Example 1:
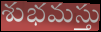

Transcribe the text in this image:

శుభమస్తు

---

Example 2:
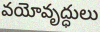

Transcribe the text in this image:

వయోవృద్ధులు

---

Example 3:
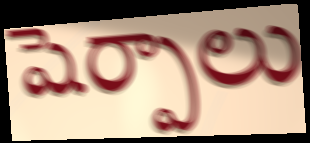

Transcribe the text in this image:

షెర్పాలు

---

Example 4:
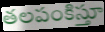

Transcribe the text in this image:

తలపంకిస్తూ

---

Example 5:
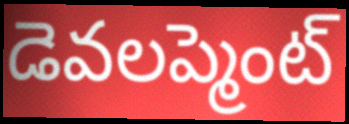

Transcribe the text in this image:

డెవలప్మెంట్